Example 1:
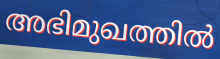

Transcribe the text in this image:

അഭിമുഖത്തിൽ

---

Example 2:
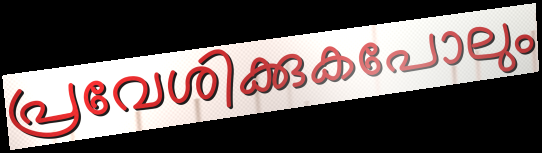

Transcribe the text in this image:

പ്രവേശിക്കുകപോലും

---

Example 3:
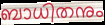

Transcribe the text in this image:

ബാധിതനും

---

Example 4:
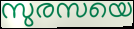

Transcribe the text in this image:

സുരസയെ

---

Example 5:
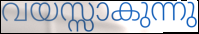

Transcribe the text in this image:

വയസ്സാകുന്നു